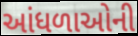
આંધળાઓની